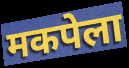
मकपेला